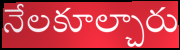
నేలకూల్చారు